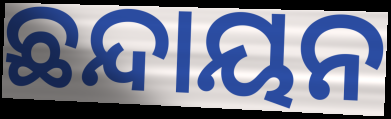
ଛନ୍ଦାୟନ